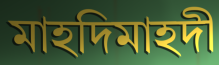
মাহদিমাহদী